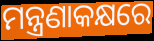
ମନ୍ତ୍ରଣାକକ୍ଷରେ